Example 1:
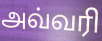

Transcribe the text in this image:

அவ்வரி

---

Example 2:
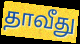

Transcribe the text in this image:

தாவீது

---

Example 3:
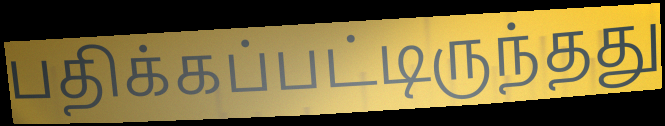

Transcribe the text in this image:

பதிக்கப்பட்டிருந்தது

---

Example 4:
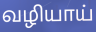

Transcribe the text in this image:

வழியாய்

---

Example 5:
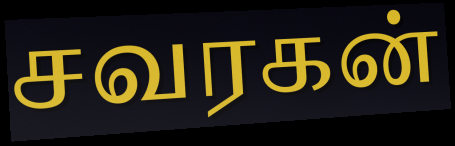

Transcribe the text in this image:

சவரகன்